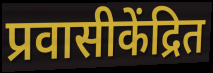
प्रवासीकेंद्रित